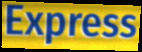
Express